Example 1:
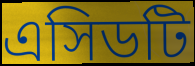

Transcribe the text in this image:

এসিডটি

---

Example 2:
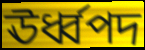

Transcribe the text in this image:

ঊর্ধ্বপদ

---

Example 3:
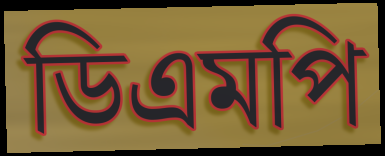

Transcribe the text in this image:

ডিএমপি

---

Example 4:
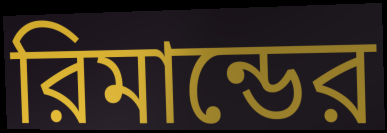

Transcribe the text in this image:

রিমান্ডের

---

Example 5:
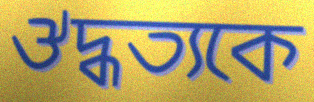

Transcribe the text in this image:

ঔদ্ধত্যকে